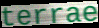
terrae